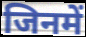
जिनमें